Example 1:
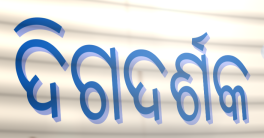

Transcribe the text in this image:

ଦିଗଦର୍ଶକ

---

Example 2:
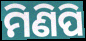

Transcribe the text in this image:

ମିଣିପି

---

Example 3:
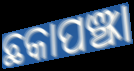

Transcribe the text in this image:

ଛକାପଞ୍ଝା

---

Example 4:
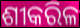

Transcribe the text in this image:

ଶୀକରିଳ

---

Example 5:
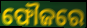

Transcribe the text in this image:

ଫୌଜରେ